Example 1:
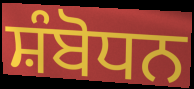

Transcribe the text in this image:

ਸ਼ੰਬੋਧਨ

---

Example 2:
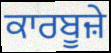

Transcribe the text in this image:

ਕਾਰਬੂਜ਼ੇ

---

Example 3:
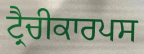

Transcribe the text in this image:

ਟ੍ਰੈਚੀਕਾਰਪਸ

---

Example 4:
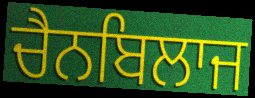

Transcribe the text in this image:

ਚੈਨਬਿਲਾਜ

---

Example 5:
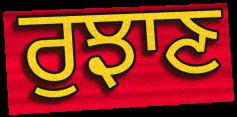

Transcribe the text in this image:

ਰੁਝਾਣ